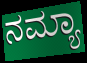
ನಮ್ಯಾ